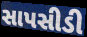
સાપસીડી